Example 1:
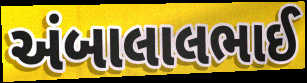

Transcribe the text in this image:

અંબાલાલભાઈ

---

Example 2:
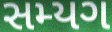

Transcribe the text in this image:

સમ્યગ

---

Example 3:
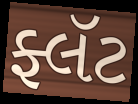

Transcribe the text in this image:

ફ્લૅટ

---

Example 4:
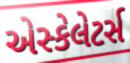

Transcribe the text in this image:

એસ્કેલેટર્સ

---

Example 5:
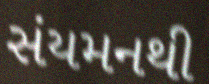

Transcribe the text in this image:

સંયમનથી